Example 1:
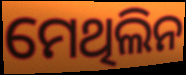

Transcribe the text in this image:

ମେଥିଲିନ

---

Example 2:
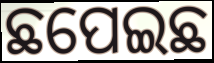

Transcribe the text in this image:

ଛପେଇଛ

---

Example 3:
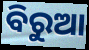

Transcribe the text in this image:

ବିରୁଆ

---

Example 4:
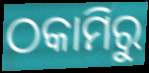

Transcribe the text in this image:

ଠକାମିରୁ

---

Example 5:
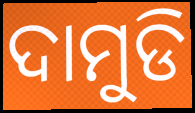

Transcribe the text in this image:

ଦାମୁଡି